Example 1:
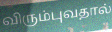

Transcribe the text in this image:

விரும்புவதால்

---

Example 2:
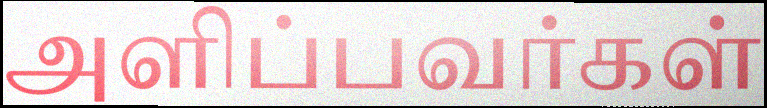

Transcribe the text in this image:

அளிப்பவர்கள்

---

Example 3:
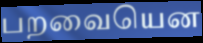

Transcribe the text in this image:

பறவையென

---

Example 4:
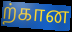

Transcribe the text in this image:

ற்கான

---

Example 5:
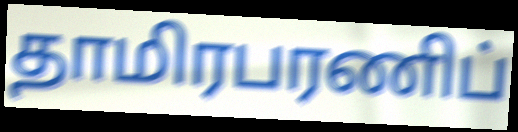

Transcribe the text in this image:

தாமிரபரணிப்